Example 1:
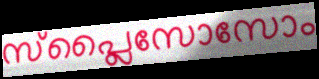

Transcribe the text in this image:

സ്പ്ലൈസോസോം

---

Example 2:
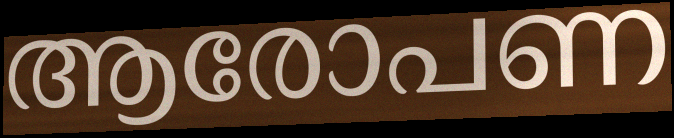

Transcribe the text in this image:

ആരോപണ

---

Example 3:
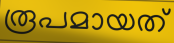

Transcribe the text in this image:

രൂപമായത്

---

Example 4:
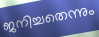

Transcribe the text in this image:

ജനിച്ചതെന്നും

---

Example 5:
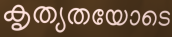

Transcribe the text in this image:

കൃത്യതയോടെ